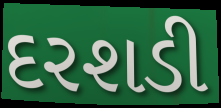
દરશડી